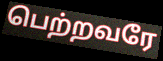
பெற்றவரே